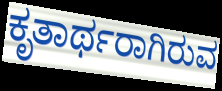
ಕೃತಾರ್ಥರಾಗಿರುವ